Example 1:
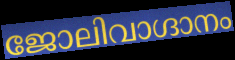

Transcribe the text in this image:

ജോലിവാഗ്ദാനം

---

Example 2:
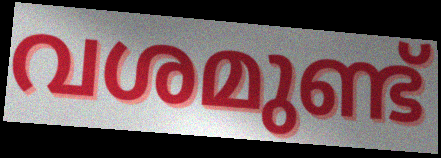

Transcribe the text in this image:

വശമുണ്ട്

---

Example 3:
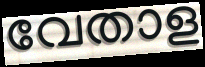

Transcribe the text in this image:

വേതാള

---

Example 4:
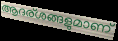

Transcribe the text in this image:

ആദര്ശങ്ങളുമാണ്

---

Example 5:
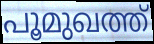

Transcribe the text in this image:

പൂമുഖത്ത്